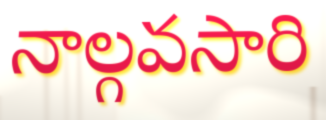
నాల్గవసారి